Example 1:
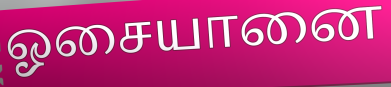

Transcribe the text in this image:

ஓசையானை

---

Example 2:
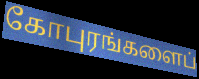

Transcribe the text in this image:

கோபுரங்களைப்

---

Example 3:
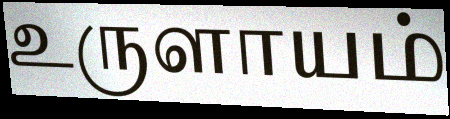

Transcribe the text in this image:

உருளாயம்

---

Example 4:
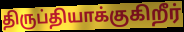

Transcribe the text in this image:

திருப்தியாக்குகிறீர்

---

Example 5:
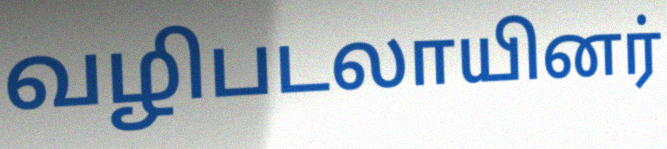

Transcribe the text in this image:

வழிபடலாயினர்